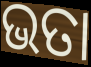
ଭତା